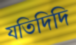
যতিদিদি